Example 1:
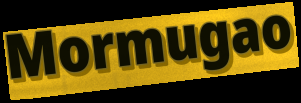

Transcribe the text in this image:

Mormugao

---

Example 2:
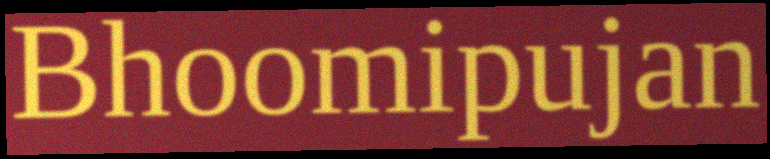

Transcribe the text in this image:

Bhoomipujan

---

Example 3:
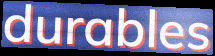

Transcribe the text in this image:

durables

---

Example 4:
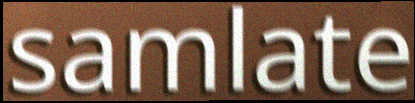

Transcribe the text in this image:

samlate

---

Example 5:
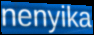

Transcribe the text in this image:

nenyika